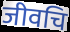
जीवचि